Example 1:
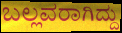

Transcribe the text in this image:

ಬಲ್ಲವರಾಗಿದ್ದು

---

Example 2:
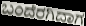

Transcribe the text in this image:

ಬಂದೆರಗಿದಾಗ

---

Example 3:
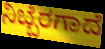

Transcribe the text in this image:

ನಿಬ್ಬೆರಗಾದೆ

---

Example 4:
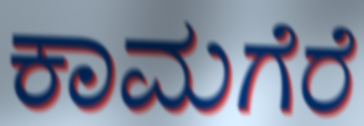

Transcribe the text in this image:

ಕಾಮಗೆರೆ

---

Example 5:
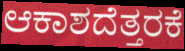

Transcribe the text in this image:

ಆಕಾಶದೆತ್ತರಕೆ